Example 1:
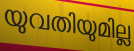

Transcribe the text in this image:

യുവതിയുമില്ല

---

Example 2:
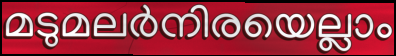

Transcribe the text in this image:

മടുമലർനിരയെല്ലാം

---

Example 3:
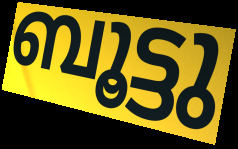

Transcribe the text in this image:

ബൂട്ടു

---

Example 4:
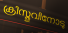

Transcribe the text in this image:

ക്രിസ്തുവിനോടു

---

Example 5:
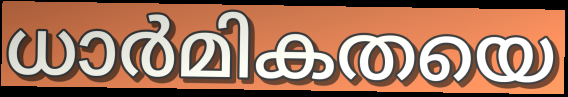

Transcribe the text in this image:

ധാർമികതയെ